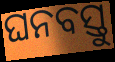
ଘନବସ୍ତୁ